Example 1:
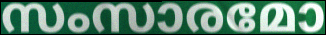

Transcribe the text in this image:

സംസാരമോ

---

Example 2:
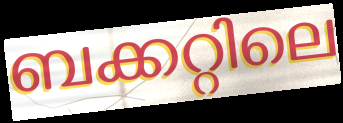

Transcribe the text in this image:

ബക്കറ്റിലെ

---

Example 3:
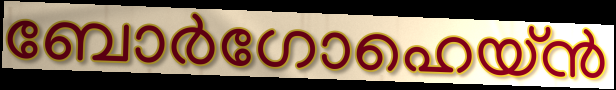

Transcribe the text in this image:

ബോർഗോഹെയ്ൻ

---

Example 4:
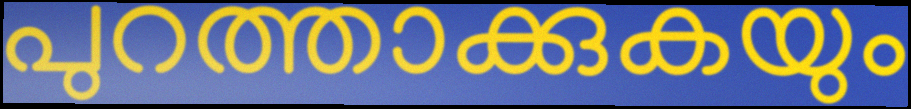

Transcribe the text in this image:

പുറത്താക്കുകയും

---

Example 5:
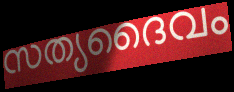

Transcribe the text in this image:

സത്യദൈവം